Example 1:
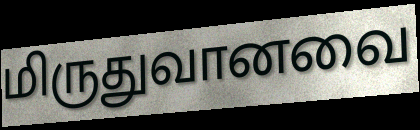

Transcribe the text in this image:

மிருதுவானவை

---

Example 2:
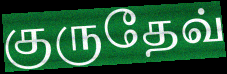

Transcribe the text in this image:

குருதேவ்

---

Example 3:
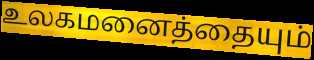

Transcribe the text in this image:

உலகமனைத்தையும்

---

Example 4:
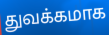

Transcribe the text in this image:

துவக்கமாக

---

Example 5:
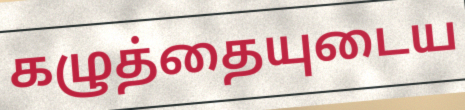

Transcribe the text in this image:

கழுத்தையுடைய